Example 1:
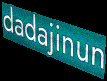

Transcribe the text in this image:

dadajinun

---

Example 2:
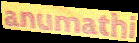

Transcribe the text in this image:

anumathi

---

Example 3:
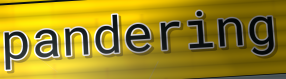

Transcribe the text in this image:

pandering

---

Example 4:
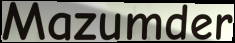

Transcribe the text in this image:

Mazumder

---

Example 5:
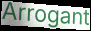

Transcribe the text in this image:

Arrogant